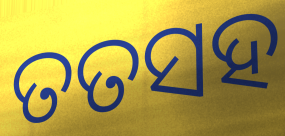
ତତସହ